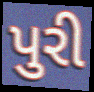
પુરી